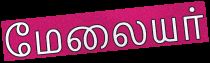
மேலையர்